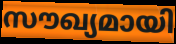
സൗഖ്യമായി